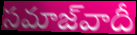
సమాజ్‌వాదీ